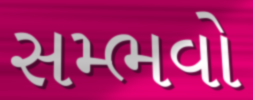
સમ્ભવો